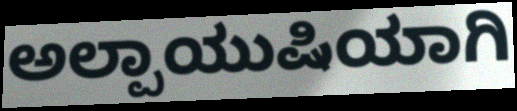
ಅಲ್ಪಾಯುಷಿಯಾಗಿ